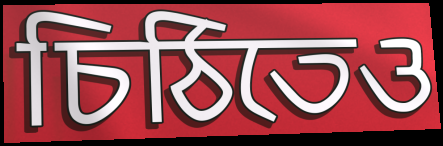
চিঠিতেও